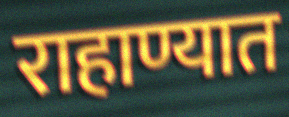
राहाण्यात